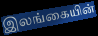
இலங்கையின்